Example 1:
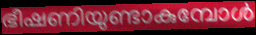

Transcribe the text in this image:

ഭീഷണിയുണ്ടാകുമ്പോൾ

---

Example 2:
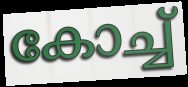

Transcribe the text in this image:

കോച്ച്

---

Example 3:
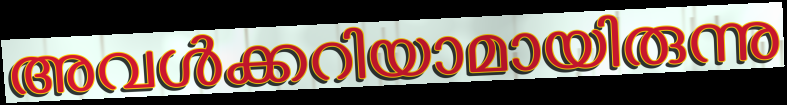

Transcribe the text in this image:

അവൾക്കറിയാമായിരുന്നു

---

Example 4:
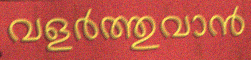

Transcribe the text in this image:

വളർത്തുവാൻ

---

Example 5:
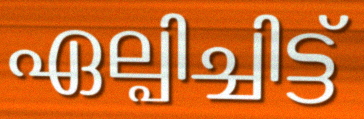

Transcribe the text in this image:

ഏല്പിച്ചിട്ട്